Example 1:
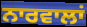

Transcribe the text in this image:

ਨਾਰਵਾਲਾਂ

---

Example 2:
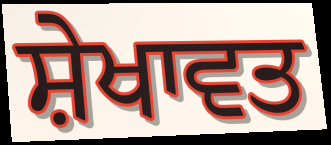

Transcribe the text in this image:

ਸ਼ੇਖਾਵਤ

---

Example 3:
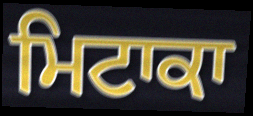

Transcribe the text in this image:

ਮਿਟਾਕਾ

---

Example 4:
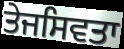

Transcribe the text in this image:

ਤੇਜਸਿਵਤਾ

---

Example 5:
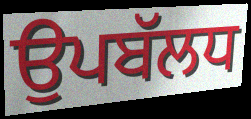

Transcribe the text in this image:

ਉਪਬੱਲਧ